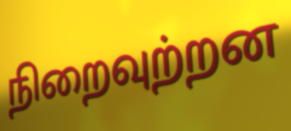
நிறைவுற்றன